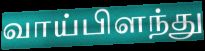
வாய்பிளந்து